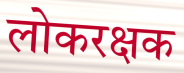
लोकरक्षक